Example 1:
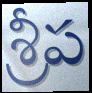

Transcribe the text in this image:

శ్రీప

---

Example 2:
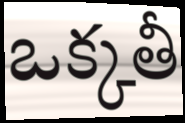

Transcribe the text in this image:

ఒక్కతీ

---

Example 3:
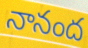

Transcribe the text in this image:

నానంద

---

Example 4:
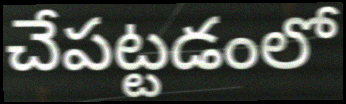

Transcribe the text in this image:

చేపట్టడంలో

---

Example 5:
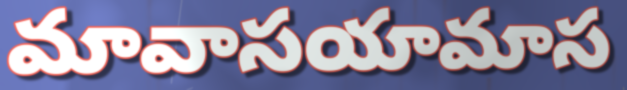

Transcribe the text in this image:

మావాసయామాస